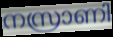
നസ്രാണി